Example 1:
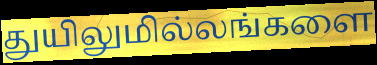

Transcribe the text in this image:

துயிலுமில்லங்களை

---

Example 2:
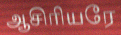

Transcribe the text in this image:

ஆசிரியரே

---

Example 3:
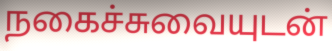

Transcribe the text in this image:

நகைச்சுவையுடன்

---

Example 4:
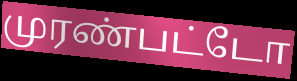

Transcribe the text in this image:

முரண்பட்டோ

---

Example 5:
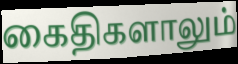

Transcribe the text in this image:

கைதிகளாலும்